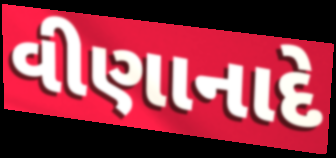
વીણાનાદે